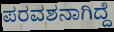
ಪರವಶನಾಗಿದ್ದೆ